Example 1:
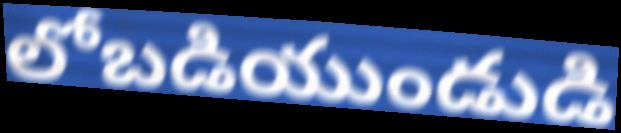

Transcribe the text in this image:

లోబడియుండుడి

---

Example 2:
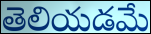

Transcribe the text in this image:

తెలియడమే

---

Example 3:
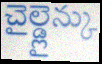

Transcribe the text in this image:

చైల్డ్లైన్కు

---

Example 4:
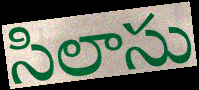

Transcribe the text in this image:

సిలాసు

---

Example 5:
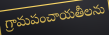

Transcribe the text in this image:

గ్రామపంచాయతీలను